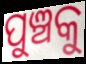
ପୁଞ୍ଚକୁ